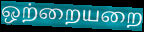
ஒற்றையறை